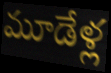
మూడేళ్ల